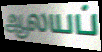
ஆலயப்